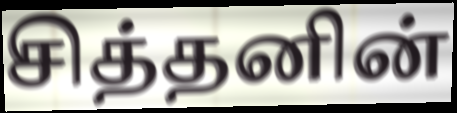
சித்தனின்